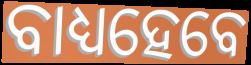
ବାଧ୍ୟହେବେ